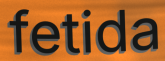
fetida